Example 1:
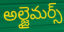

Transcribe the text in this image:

అల్జైమర్స్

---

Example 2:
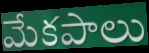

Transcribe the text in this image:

మేకపాలు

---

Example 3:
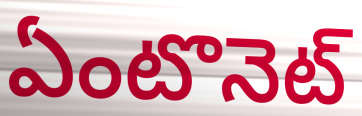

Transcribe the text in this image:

ఏంటొనెట్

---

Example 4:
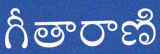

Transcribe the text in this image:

గీతారాణి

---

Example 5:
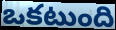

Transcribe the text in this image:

ఒకటుంది